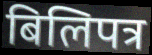
बिलिपत्र